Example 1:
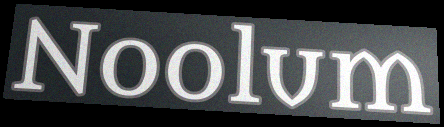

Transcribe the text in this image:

Noolum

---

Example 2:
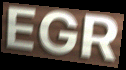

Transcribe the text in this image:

EGR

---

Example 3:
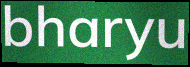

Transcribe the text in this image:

bharyu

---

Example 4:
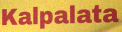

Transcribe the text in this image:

Kalpalata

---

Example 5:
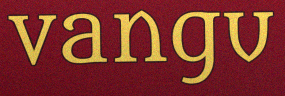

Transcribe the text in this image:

vangu